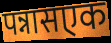
पन्नासएक